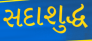
સદાશુદ્ધ